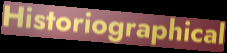
Historiographical